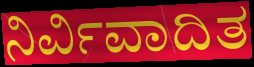
ನಿರ್ವಿವಾದಿತ